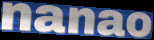
nanao